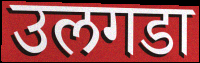
उलगडा